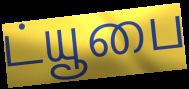
ட்யூபை